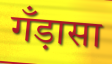
गँड़ासा